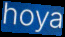
hoya